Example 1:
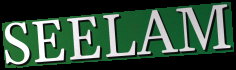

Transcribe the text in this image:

SEELAM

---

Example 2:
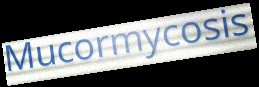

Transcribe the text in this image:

Mucormycosis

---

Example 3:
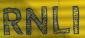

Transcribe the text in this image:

RNLI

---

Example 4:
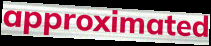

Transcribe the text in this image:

approximated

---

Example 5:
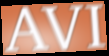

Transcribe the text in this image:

AVI